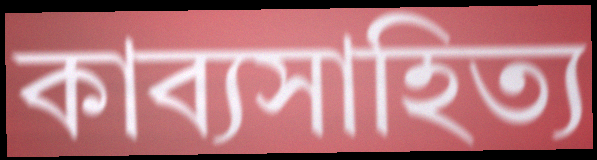
কাব্যসাহিত্য